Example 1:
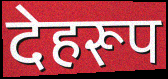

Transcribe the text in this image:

देहरूप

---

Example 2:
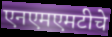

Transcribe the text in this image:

एनएमएमटीचे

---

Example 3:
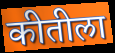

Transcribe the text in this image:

कीतीला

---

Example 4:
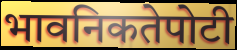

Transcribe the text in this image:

भावनिकतेपोटी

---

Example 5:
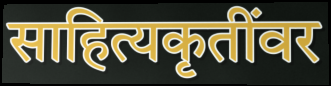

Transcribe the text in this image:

साहित्यकृतींवर